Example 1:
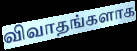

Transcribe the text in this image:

விவாதங்களாக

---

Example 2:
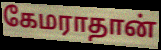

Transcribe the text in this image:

கேமராதான்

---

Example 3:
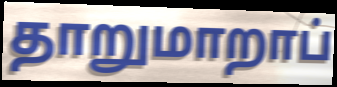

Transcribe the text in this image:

தாறுமாறாப்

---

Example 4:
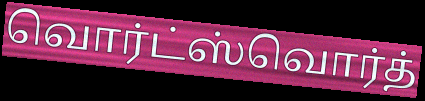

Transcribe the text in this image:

வொர்ட்ஸ்வொர்த்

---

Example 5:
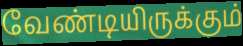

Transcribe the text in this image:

வேண்டியிருக்கும்